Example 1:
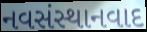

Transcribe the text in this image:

નવસંસ્થાનવાદ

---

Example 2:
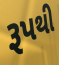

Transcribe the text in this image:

રૂપથી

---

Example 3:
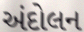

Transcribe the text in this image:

અંદોલન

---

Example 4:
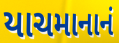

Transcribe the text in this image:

યાચમાનાનં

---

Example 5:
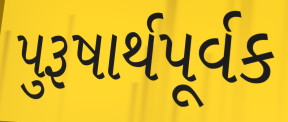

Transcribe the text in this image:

પુરૂષાર્થપૂર્વક